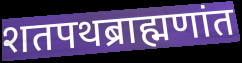
शतपथब्राह्मणांत